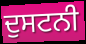
ਦੁਸਟਨੀ